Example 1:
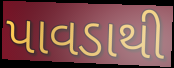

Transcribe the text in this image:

પાવડાથી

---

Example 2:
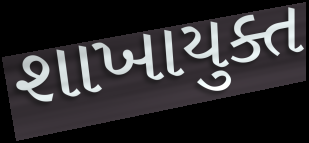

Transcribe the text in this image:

શાખાયુક્ત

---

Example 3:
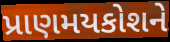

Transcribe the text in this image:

પ્રાણમયકોશને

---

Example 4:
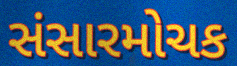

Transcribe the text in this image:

સંસારમોચક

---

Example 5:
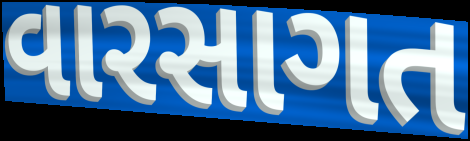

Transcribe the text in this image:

વારસાગત